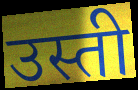
उस्ती